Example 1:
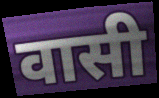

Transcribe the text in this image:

वासी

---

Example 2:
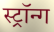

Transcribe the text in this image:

स्ट्रॉन्ग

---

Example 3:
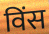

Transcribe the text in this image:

विंस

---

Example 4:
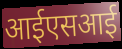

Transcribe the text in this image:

आईएसआई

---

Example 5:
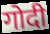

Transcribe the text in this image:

गोदी